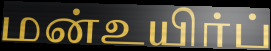
மன்உயிர்ப்